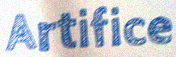
Artifice